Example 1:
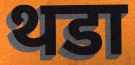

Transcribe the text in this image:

थडा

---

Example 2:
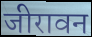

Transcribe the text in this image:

जीरावन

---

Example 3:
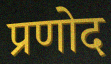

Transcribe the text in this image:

प्रणोद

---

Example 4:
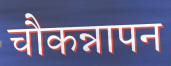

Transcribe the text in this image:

चौकन्नापन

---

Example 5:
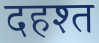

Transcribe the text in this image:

दहश्त